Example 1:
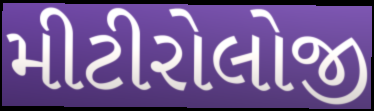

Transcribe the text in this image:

મીટીરોલોજી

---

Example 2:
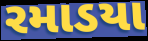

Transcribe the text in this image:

રમાડયા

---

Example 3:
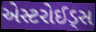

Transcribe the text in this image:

એસ્ટરોઈડ્સ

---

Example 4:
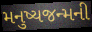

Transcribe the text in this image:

મનુષ્યજન્મની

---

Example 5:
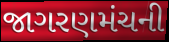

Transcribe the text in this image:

જાગરણમંચની